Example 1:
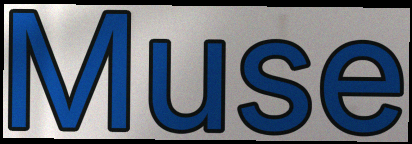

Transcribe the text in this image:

Muse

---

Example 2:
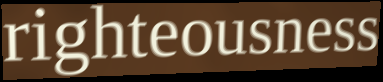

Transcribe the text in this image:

righteousness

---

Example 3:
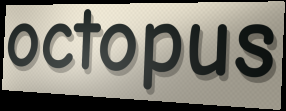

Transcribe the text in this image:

octopus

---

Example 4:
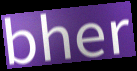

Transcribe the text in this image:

bher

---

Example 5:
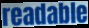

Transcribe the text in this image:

readable